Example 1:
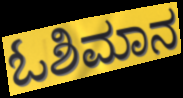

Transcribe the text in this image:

ಓಶಿಮಾನ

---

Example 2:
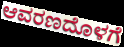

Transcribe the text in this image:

ಆವರಣದೊಳಗೆ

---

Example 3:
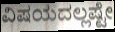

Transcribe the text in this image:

ವಿಷಯದಲ್ಲಷ್ಟೇ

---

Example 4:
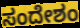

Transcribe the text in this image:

ಸಂದೇಶಂ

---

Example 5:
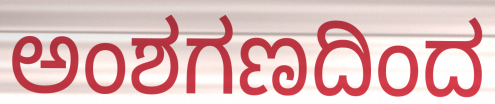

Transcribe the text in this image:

ಅಂಶಗಣದಿಂದ